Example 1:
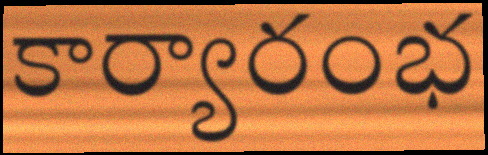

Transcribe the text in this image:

కార్యారంభ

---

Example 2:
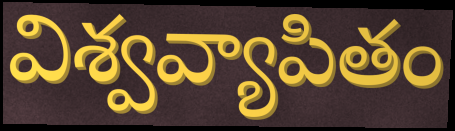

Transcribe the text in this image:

విశ్వవ్యాపితం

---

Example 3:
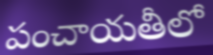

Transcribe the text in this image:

పంచాయతీలో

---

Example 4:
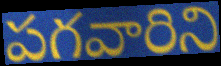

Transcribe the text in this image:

పగవారిని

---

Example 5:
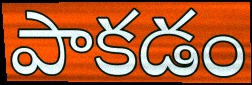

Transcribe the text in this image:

పాకడం